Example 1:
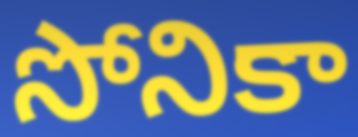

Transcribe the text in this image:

సోనికా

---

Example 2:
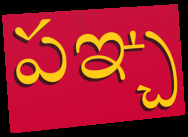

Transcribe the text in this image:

పఞ్చ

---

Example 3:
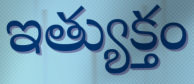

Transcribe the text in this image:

ఇత్యుక్తం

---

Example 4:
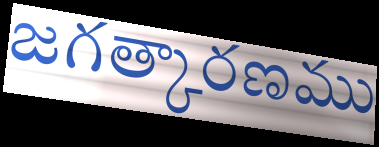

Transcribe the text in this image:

జగత్కారణము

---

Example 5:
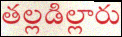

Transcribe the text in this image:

తల్లడిల్లారు